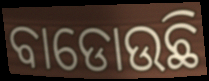
ବାଡୋଉଛି